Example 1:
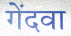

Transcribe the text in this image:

गेंदवा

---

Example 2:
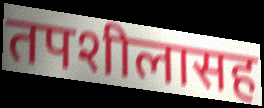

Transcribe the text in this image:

तपशीलासह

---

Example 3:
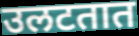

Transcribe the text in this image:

उलटतात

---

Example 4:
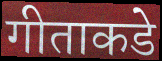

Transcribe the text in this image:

गीताकडे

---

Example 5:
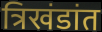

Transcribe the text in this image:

त्रिखंडांत